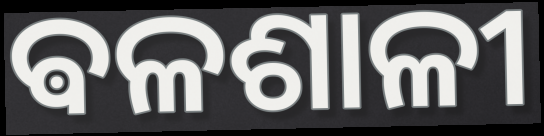
ଵଳଶାଳୀ